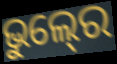
ଭୁଲ୍‍ରେ